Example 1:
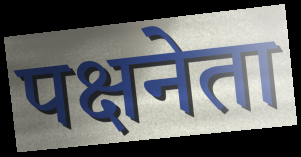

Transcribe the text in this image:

पक्षनेता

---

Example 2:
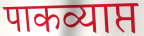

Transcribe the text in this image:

पाकव्याप्त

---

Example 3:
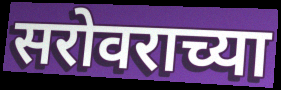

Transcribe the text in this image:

सरोवराच्या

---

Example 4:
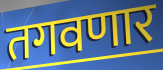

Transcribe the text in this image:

तगवणार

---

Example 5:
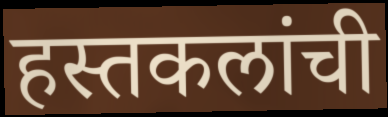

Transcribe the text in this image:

हस्तकलांची